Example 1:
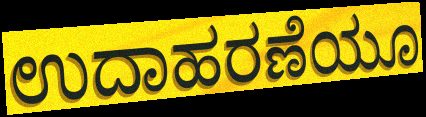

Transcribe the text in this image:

ಉದಾಹರಣೆಯೂ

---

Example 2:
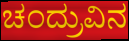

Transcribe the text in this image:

ಚಂದ್ರುವಿನ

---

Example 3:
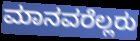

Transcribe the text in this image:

ಮಾನವರೆಲ್ಲರು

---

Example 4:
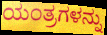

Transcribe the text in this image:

ಯಂತ್ರಗಳನ್ನು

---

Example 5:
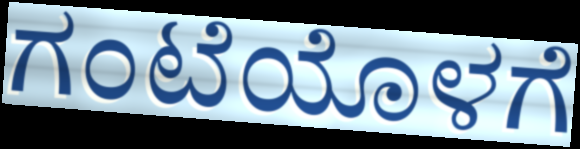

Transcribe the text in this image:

ಗಂಟೆಯೊಳಗೆ